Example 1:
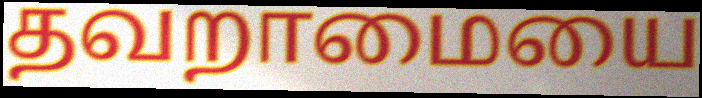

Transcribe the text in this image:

தவறாமையை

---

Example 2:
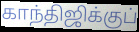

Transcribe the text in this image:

காந்திஜிக்குப்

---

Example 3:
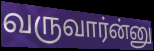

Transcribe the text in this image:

வருவார்ன்னு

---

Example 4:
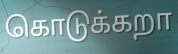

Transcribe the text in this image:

கொடுக்கறா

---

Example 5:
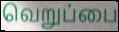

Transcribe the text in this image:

வெறுப்பை